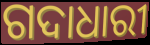
ଗଦାଧାରୀ